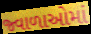
જ્વાળાઓમાં